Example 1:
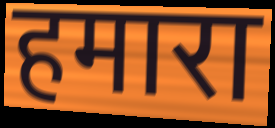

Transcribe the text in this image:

हमारा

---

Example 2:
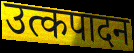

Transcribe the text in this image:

उत्कपादन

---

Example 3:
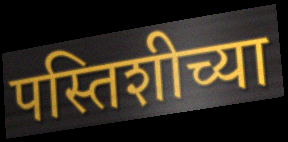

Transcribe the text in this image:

पस्तिशीच्या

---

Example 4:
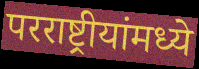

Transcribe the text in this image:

परराष्ट्रीयांमध्ये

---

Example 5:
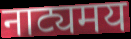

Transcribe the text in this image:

नाट्यमय